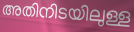
അതിനിടയിലുള്ള